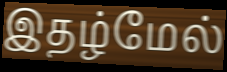
இதழ்மேல்